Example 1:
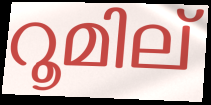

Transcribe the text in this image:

റൂമില്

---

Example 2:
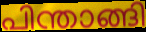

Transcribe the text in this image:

പിന്താങ്ങി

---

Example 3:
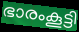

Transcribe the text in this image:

ഭാരംകൂട്ടി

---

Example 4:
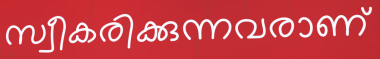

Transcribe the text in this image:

സ്വീകരിക്കുന്നവരാണ്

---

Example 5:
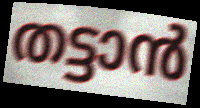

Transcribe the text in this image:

തട്ടാൻ